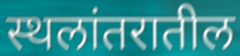
स्थलांतरातील